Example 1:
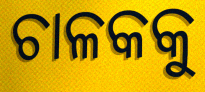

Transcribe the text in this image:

ଚାଳକକୁ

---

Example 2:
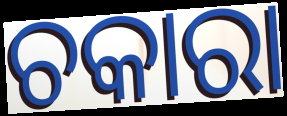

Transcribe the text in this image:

ଚକାରା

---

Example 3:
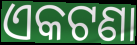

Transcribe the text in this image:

ଏକଟଣା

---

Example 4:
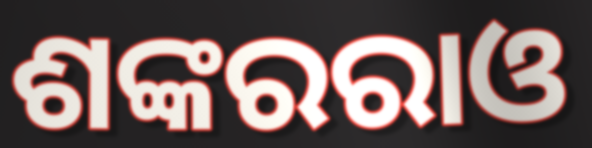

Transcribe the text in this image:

ଶଙ୍କରରାଓ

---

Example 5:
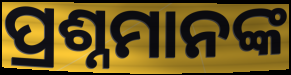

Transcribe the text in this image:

ପ୍ରଶ୍ନମାନଙ୍କ